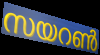
സയറൺ